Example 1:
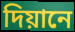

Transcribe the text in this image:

দিয়ানে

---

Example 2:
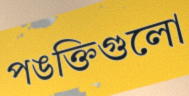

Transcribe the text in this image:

পঙক্তিগুলো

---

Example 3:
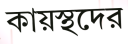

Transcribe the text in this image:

কায়স্থদের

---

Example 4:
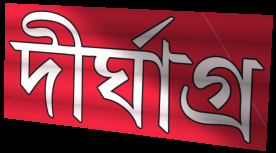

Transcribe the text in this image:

দীর্ঘাগ্র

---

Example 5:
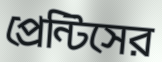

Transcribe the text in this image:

প্রেন্টিসের